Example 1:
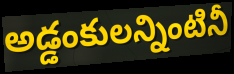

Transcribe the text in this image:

అడ్డంకులన్నింటినీ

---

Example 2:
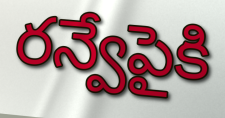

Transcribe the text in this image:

రన్వేపైకి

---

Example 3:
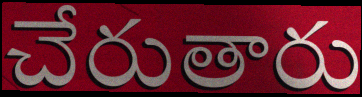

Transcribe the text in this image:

చేరుతారు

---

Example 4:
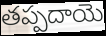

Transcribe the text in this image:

తప్పదాయె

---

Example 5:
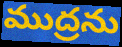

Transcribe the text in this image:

ముద్రను